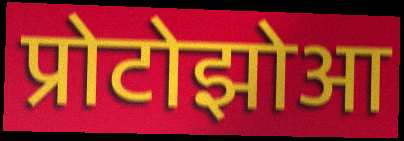
प्रोटोझोआ